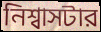
নিশ্বাসটার